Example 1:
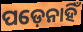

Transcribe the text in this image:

ପଡ଼େନାହିଁ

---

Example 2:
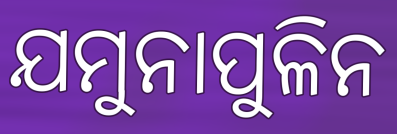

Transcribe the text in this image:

ଯମୁନାପୁଳିନ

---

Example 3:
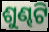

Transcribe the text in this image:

ଶୁଣ୍ଢଟି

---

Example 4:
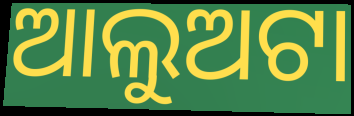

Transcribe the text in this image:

ଆଲୁଅଟା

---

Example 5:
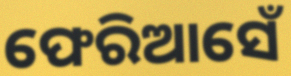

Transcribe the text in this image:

ଫେରିଆସେଁ